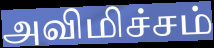
அவிமிச்சம்